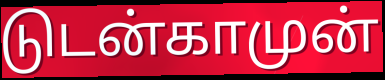
டுடன்காமுன்